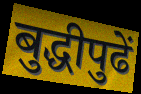
बुद्धीपुढें